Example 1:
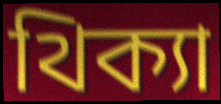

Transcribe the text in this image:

থিক্যা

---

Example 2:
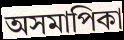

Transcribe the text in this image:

অসমাপিকা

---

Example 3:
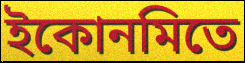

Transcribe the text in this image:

ইকোনমিতে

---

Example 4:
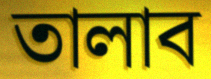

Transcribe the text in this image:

তালাব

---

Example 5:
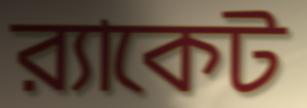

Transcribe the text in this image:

র‍্যাকেট